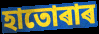
হাতোৰাৰ